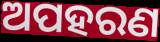
ଅପହରଣ